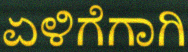
ಏಳಿಗೆಗಾಗಿ